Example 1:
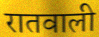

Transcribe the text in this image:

रातवाली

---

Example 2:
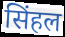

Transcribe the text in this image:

सिंहल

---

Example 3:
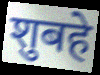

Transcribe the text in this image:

शुबहे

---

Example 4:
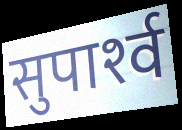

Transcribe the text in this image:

सुपार्श्व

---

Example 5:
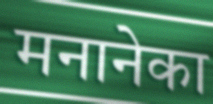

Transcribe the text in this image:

मनानेका